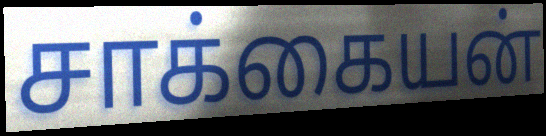
சாக்கையன்